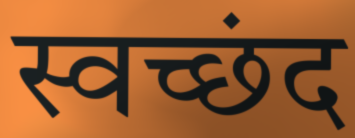
स्वच्छंद